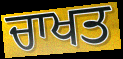
ਚਾਖਤ